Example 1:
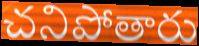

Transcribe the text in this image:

చనిపోతారు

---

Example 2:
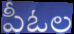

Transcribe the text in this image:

పీఓల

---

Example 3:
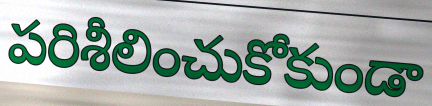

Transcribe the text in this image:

పరిశీలించుకోకుండా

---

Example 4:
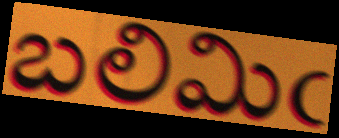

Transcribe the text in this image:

బలిమిఁ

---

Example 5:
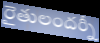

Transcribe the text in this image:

రైతులందర్నీ